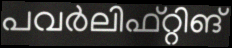
പവർലിഫ്റ്റിങ്